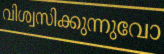
വിശ്വസിക്കുന്നുവോ